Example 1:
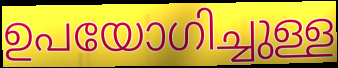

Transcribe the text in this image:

ഉപയോഗിച്ചുള്ള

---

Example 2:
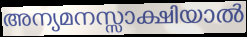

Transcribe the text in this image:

അന്യമനസ്സാക്ഷിയാൽ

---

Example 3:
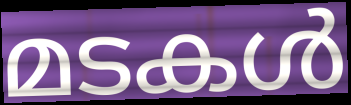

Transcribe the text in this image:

മടകൾ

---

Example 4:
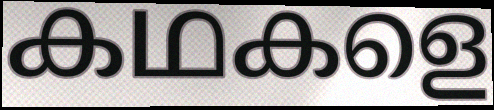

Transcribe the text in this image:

കഥകളെ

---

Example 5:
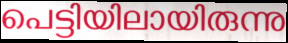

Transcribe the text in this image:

പെട്ടിയിലായിരുന്നു